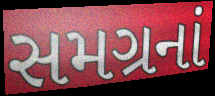
સમગ્રનાં